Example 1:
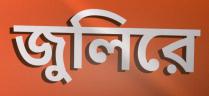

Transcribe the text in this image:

জুলিরে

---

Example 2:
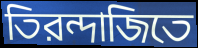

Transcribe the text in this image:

তিরন্দাজিতে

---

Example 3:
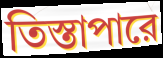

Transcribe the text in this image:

তিস্তাপারে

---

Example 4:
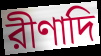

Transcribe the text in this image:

রীণাদি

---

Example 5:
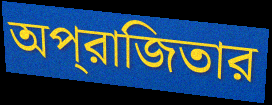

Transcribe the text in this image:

অপ্‌রাজিতার